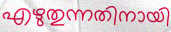
എഴുതുന്നതിനായി